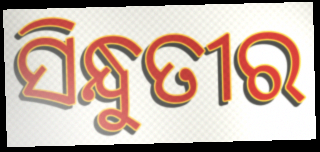
ସିନ୍ଧୁତୀର